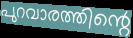
പുറവാരത്തിന്റെ